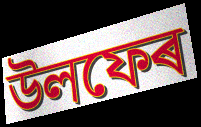
উলফেৰ